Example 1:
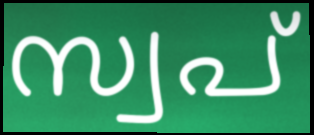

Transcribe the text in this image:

സ്വപ്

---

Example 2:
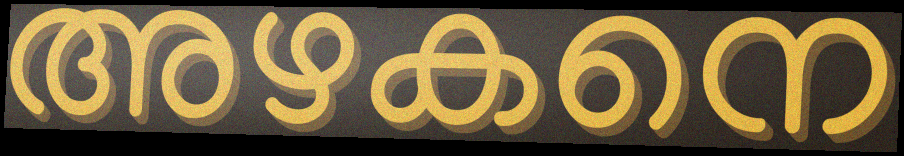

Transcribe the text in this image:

അഴകനെ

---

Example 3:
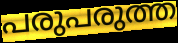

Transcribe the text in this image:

പരുപരുത്ത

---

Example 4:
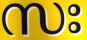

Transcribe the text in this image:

സഃ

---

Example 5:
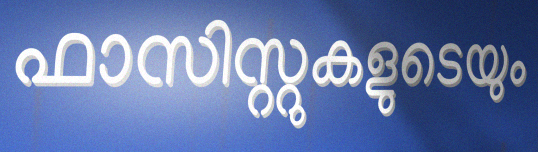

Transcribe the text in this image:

ഫാസിസ്റ്റുകളുടെയും